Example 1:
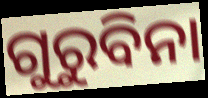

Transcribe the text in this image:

ଗୁରୁବିନା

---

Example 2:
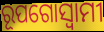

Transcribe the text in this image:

ରୂପଗୋସ୍ୱାମୀ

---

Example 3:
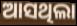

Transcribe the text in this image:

ଆସଥିଲା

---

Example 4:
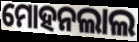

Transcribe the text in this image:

ମୋହନଲାଲ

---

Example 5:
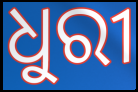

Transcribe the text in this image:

ଧୁରୀ